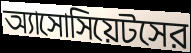
অ্যাসোসিয়েটসের